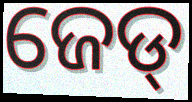
ଜେଡ୍